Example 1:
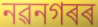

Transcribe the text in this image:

নৱনগৰৰ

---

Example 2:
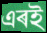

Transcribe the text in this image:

এৰই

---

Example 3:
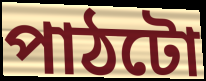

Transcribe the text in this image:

পাঠটো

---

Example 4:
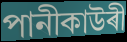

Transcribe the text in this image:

পানীকাউৰী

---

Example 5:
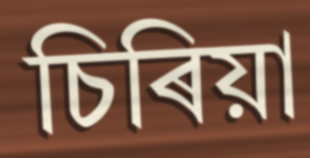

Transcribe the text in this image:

চিৰিয়া